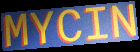
MYCIN